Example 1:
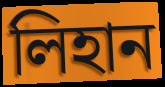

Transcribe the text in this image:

লিহান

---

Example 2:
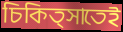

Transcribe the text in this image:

চিকিত্সাতেই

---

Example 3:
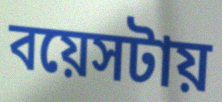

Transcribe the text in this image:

বয়েসটায়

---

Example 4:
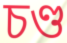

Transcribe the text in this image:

চণ্ড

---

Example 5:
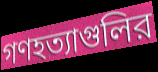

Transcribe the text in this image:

গণহত্যাগুলির